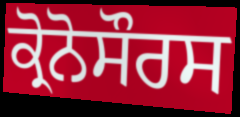
ਕ੍ਰੋਨੋਸੌਰਸ